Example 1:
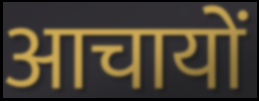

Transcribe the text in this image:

आचायों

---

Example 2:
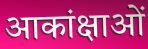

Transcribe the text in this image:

आकांक्षाओं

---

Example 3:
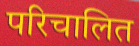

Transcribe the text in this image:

परिचालित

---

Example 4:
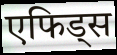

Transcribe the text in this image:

एफिड्स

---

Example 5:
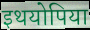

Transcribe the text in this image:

इथयोपिया